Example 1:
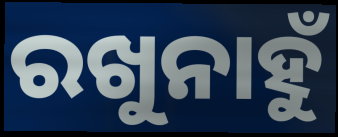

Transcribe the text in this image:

ରଖୁନାହୁଁ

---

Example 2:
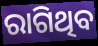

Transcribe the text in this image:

ରାଗିଥିବ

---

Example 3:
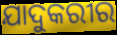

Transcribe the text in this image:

ଯାଦୁକରୀର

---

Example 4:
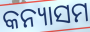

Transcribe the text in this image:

କନ୍ୟାସମ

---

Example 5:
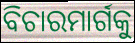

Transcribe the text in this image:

ବିଚାରମାର୍ଗକୁ